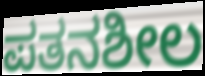
ಪತನಶೀಲ